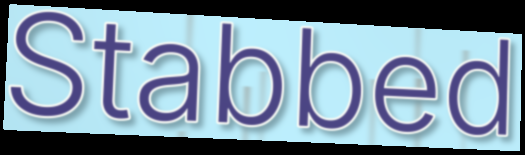
Stabbed